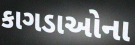
કાગડાઓના